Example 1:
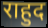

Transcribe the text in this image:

राहुद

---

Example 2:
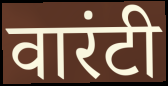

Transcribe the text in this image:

वारंटी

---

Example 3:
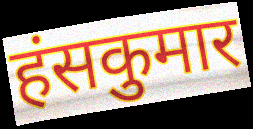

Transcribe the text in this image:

हंसकुमार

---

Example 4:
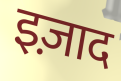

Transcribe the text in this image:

इज़ाद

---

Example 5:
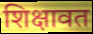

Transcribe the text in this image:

शिक्षावत